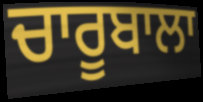
ਚਾਰੂਬਾਲਾ